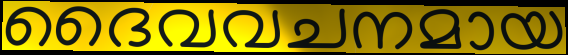
ദൈവവചനമായ